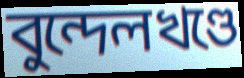
বুন্দেলখণ্ডে